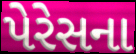
પેરેસના